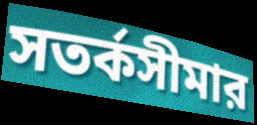
সতর্কসীমার